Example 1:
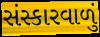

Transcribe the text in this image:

સંસ્કારવાળું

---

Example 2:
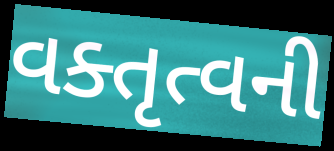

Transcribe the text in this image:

વક્તૃત્વની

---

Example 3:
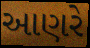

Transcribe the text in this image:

આણરે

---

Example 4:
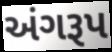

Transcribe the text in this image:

અંગરૂપ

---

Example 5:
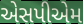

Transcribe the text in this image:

એસપીએમ